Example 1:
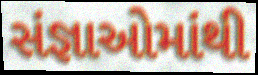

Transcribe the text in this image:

સંજ્ઞાઓમાંથી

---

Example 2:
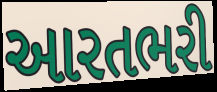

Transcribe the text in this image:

આરતભરી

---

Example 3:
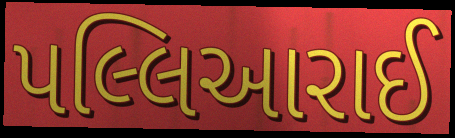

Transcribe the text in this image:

પલ્લિઆરાઈ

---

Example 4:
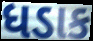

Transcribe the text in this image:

ધડાક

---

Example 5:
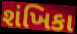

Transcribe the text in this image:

શંખિકા